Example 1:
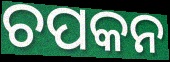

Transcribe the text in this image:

ଚପକନ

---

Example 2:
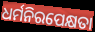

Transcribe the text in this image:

ଧର୍ମନିରପେକ୍ଷତା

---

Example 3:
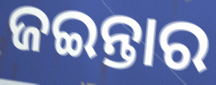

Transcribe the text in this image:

ଜଇନ୍ତାର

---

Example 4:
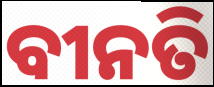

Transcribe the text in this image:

ବୀନତି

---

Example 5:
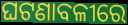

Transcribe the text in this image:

ଘଟଣାବଳୀରେ